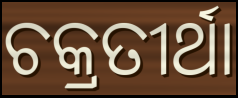
ଚକ୍ରତୀର୍ଥା